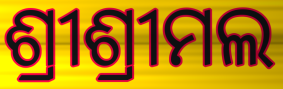
ଶ୍ରୀଶ୍ରୀମଲ